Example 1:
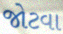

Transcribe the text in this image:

જોટવા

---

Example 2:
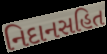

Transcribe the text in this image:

નિદાનસહિત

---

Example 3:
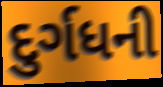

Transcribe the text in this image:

દુર્ગધની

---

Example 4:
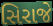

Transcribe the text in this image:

સિરાજે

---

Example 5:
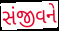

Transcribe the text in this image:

સંજીવને